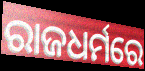
ରାଜଧର୍ମରେ